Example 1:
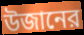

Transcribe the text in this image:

উজানের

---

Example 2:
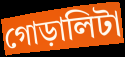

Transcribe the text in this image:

গোড়ালিটা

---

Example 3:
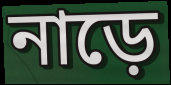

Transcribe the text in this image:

নাড়ে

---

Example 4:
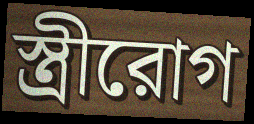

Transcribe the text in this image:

স্ত্রীরোগ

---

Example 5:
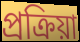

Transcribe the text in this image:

প্রক্রিয়া